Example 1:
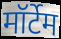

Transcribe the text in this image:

मॉर्टेम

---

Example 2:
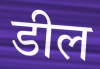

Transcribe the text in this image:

डील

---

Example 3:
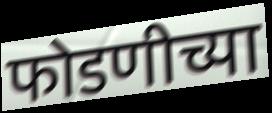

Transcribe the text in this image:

फोडणीच्या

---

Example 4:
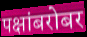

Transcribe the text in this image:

पक्षांबरोबर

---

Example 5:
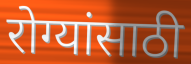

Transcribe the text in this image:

रोग्यांसाठी